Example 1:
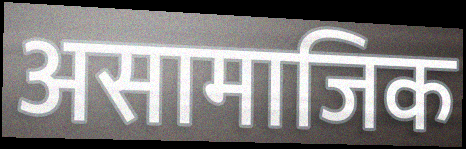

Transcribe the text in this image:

असामाजिक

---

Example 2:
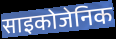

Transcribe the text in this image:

साइकोजेनिक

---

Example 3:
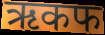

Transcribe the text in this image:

ऋकफ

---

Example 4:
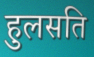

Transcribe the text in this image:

हुलसति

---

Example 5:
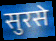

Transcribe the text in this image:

सुरसे